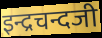
इन्द्रचन्दजी